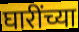
घारींच्या